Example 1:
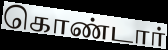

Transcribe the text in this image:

கொண்டார்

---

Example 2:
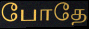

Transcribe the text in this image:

போதே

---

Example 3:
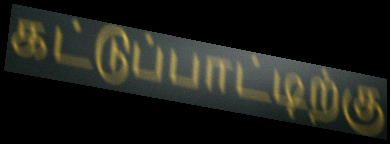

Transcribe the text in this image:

கட்டுப்பாட்டிற்கு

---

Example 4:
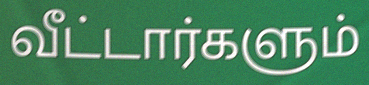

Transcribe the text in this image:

வீட்டார்களும்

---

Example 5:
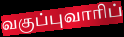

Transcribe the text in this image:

வகுப்புவாரிப்